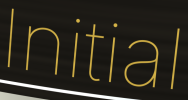
Initial